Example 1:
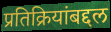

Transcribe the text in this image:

प्रतिक्रियांबद्दल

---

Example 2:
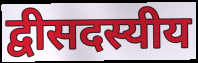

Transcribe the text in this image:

द्वीसदस्यीय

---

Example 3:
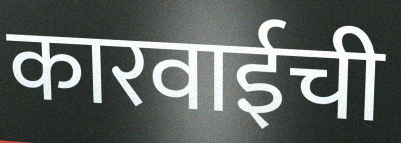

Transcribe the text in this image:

कारवाईची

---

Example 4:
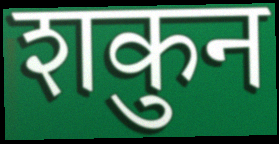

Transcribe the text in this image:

शकुन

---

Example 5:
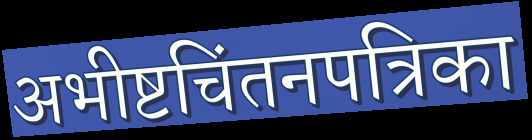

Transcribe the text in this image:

अभीष्टचिंतनपत्रिका